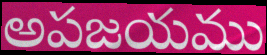
అపజయము